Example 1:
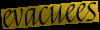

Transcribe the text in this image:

evacuees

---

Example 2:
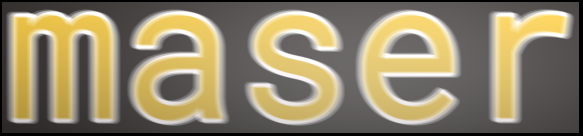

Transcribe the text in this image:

maser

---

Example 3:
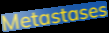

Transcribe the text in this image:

Metastases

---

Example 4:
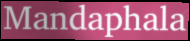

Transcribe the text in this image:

Mandaphala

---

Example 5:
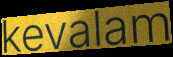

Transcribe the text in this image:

kevalam